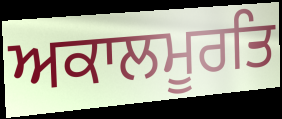
ਅਕਾਲਮੂਰਤਿ